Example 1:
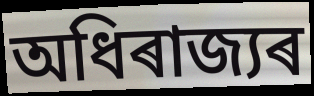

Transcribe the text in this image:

অধিৰাজ্যৰ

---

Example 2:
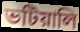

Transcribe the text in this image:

ভটিয়ালি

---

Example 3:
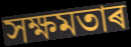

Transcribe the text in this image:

সক্ষমতাৰ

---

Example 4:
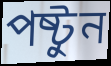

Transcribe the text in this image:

পষ্টুন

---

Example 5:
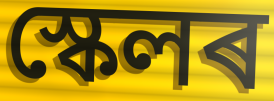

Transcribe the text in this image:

স্কেলৰ